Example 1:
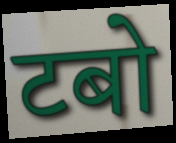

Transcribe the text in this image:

टबो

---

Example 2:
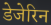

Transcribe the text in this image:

डेजेरिन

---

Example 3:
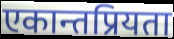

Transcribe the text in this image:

एकान्तप्रियता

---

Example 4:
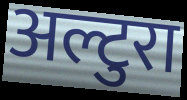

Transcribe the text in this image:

अल्टुरा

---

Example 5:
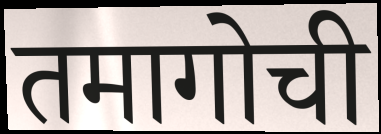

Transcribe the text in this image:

तमागोची